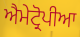
ਐਮੇਟ੍ਰੋਪੀਆ